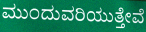
ಮುಂದುವರಿಯುತ್ತೇವೆ